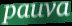
pauva